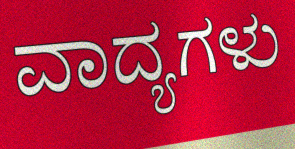
ವಾದ್ಯಗಳು